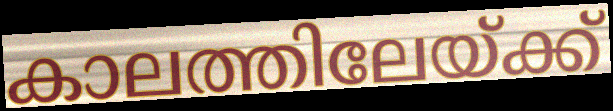
കാലത്തിലേയ്ക്ക്